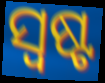
ସ୍ୱଷ୍ଟ